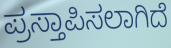
ಪ್ರಸ್ತಾಪಿಸಲಾಗಿದೆ